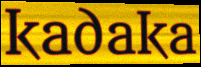
kadaka